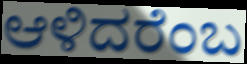
ಆಳಿದರೆಂಬ